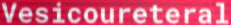
Vesicoureteral